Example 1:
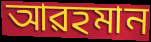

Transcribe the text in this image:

আৱহমান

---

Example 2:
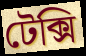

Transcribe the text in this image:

টেক্সি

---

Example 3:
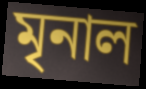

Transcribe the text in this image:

মৃনাল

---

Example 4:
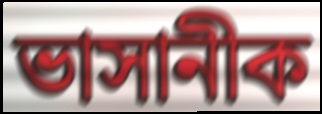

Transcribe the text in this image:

ভাসানীক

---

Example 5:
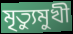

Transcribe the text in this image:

মৃত্যুমুখী